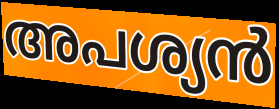
അപശ്യൻ